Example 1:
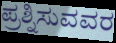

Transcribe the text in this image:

ಪ್ರಶ್ನಿಸುವವರ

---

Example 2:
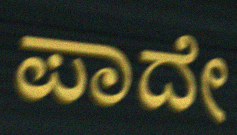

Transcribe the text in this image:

ಪಾದೇ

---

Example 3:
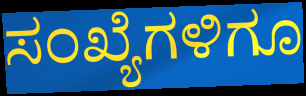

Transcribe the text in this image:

ಸಂಖ್ಯೆಗಳಿಗೂ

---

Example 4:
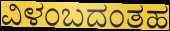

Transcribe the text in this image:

ವಿಳಂಬದಂತಹ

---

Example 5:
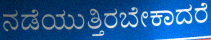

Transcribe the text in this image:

ನಡೆಯುತ್ತಿರಬೇಕಾದರೆ